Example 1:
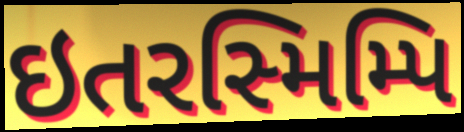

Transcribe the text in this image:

ઇતરસ્મિમ્પિ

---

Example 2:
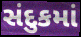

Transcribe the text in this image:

સંદુકમાં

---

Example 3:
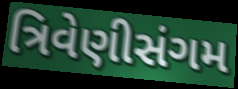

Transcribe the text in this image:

ત્રિવેણીસંગમ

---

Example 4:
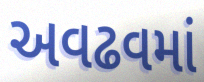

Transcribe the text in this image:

અવઢવમાં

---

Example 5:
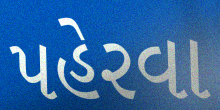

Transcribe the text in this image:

પહેરવા